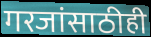
गरजांसाठीही